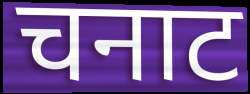
चनाट